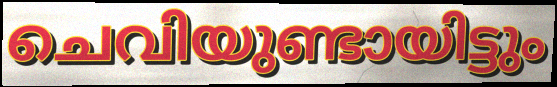
ചെവിയുണ്ടായിട്ടും